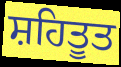
ਸ਼ਹਿਤੂਤ